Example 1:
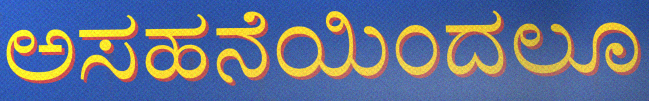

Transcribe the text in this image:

ಅಸಹನೆಯಿಂದಲೂ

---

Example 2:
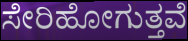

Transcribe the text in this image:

ಸೇರಿಹೋಗುತ್ತವೆ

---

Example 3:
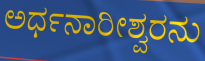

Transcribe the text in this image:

ಅರ್ಧನಾರೀಶ್ವರನು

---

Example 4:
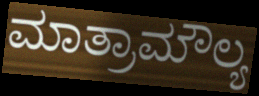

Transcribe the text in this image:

ಮಾತ್ರಾಮೌಲ್ಯ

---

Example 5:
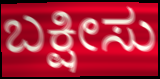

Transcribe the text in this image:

ಬಕ್ಷೀಸು